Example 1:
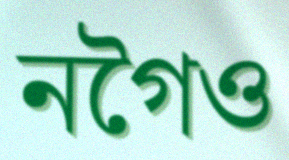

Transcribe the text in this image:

নগৈও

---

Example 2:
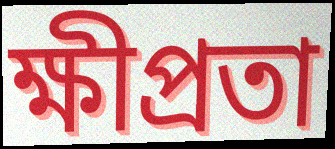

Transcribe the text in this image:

ক্ষীপ্ৰতা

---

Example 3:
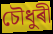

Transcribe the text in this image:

চৌধুৰী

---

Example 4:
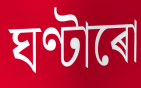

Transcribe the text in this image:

ঘণ্টাৰো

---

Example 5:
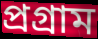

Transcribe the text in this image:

প্ৰগ্ৰাম